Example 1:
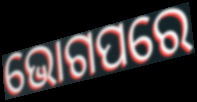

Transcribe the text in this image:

ଭୋଗପରେ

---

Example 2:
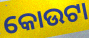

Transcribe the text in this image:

କୋଉଟା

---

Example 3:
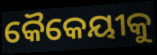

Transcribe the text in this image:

କୈକେୟୀକୁ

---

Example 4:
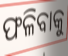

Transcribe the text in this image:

ଫଳିବାକୁ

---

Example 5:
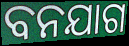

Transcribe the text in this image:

ବନଯାଗ